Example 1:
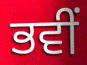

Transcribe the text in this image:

ਭਵੀਂ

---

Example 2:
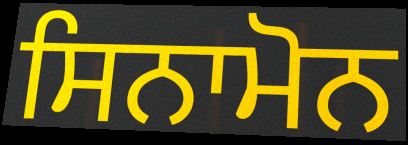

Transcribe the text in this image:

ਸਿਨਾਮੋਨ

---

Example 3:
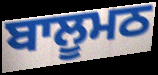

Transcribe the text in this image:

ਬਾਲੂਮਠ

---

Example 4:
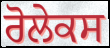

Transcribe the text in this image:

ਰੋਲੇਕਸ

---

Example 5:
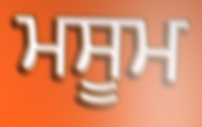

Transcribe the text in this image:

ਮਸੂਮ